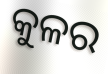
କୁଳର